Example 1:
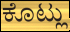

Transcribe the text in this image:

ಕೊಟ್ಲು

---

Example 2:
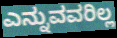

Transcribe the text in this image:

ಎನ್ನುವವರಿಲ್ಲ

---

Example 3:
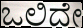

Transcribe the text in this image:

ಒಲಿದೇ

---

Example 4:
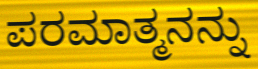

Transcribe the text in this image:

ಪರಮಾತ್ಮನನ್ನು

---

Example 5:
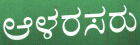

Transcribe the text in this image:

ಆಳರಸರು